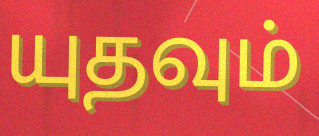
யுதவும்